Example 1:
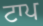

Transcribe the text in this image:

ਟਾਪ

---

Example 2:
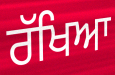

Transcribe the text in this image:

ਰੱਖਿਆ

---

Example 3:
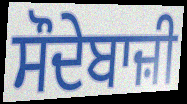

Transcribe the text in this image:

ਸੌਦੇਬਾਜ਼ੀ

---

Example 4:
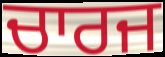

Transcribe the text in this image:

ਚਾਰਜ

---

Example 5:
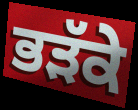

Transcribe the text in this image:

ਭੜੱਕੇ